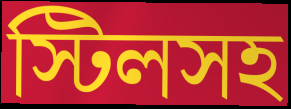
স্টিলসহ